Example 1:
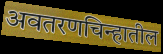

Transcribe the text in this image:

अवतरणचिन्हातील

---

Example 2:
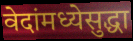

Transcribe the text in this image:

वेदांमध्येसुद्धा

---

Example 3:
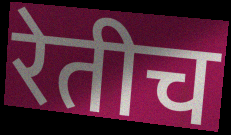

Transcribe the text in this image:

रेतीच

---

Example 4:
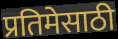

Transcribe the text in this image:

प्रतिमेसाठी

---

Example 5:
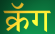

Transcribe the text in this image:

क्रॅग